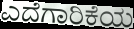
ಎದೆಗಾರಿಕೆಯ